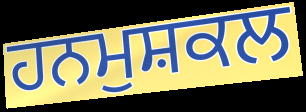
ਹਨਮੁਸ਼ਕਲ